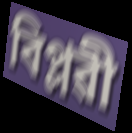
বিপ্লৱী